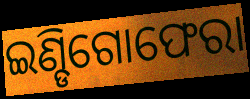
ଇଣ୍ଡିଗୋଫେରା